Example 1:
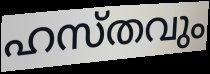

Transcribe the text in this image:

ഹസ്തവും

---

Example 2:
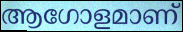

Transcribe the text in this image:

ആഗോളമാണ്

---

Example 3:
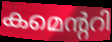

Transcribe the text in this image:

കമെന്ററി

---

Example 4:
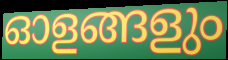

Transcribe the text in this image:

ഓളങ്ങളും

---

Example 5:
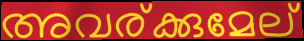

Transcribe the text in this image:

അവര്ക്കുമേല്